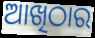
ଆଖିଠାର